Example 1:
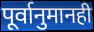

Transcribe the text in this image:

पूर्वानुमानही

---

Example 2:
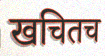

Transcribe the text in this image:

खचितच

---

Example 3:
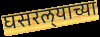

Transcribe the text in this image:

घसरल्याच्या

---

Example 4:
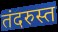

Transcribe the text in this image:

तंदरुस्त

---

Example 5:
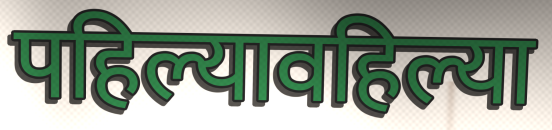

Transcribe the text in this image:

पहिल्यावहिल्या